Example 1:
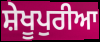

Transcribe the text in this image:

ਸ਼ੇਖੂਪੁਰੀਆ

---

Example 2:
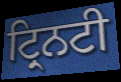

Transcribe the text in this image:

ਟ੍ਰਿਨਟੀ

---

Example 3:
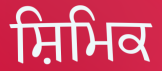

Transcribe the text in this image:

ਸ਼ਿਮਿਕ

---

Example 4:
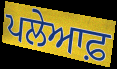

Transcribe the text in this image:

ਪਲੇਆਫ਼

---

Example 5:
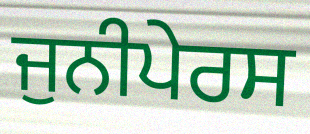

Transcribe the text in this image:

ਜੁਨੀਪੇਰਸ